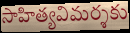
సాహిత్యవిమర్శకు